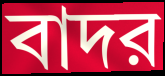
বাদর